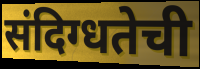
संदिग्धतेची